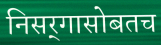
निसर्गासोबतच